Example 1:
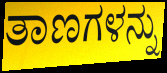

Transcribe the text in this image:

ತಾಣಗಳನ್ನು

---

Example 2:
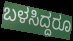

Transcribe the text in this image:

ಬಳಸಿದ್ದರೂ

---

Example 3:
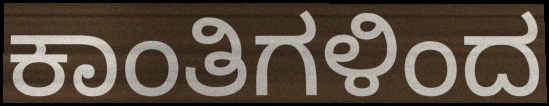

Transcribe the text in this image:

ಕಾಂತಿಗಳಿಂದ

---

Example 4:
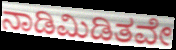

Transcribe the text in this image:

ನಾಡಿಮಿಡಿತವೇ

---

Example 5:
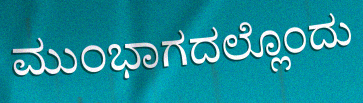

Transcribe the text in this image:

ಮುಂಭಾಗದಲ್ಲೊಂದು